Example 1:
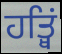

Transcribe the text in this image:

ਹਤ੍ਥਿਂ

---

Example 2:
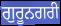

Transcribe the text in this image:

ਗੁਰੂਨਗਰੀ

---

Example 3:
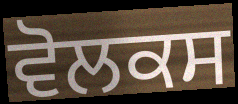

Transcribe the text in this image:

ਵੋਲਕਸ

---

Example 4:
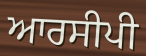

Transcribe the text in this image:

ਆਰਸੀਪੀ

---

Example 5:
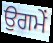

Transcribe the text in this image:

ਉਗਮੇਂ